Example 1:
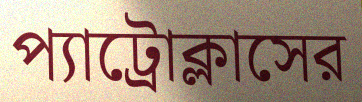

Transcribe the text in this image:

প্যাট্রোক্লাসের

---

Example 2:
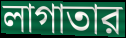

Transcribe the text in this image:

লাগাতার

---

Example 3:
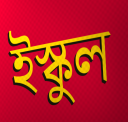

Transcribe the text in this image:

ইস্কুল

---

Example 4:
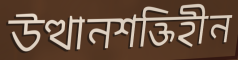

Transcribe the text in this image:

উত্থানশক্তিহীন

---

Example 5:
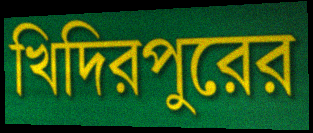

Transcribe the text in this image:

খিদিরপুরের